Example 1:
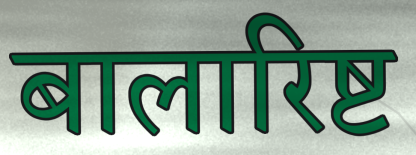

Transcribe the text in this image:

बालारिष्ट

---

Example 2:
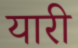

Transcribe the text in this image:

यारी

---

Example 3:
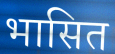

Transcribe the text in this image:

भासित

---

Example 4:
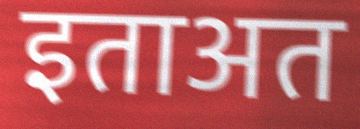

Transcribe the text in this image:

इताअत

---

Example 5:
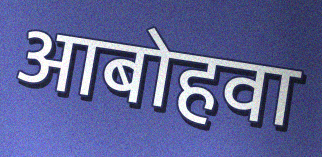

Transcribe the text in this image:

आबोहवा